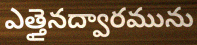
ఎత్తైనద్వారమును